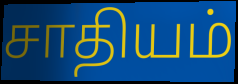
சாதியம்